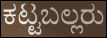
ಕಟ್ಟಬಲ್ಲರು